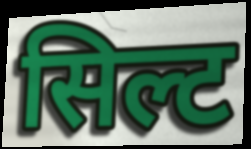
सिल्ट